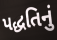
પદ્ધતિનું